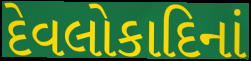
દેવલોકાદિનાં